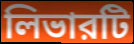
লিভারটি